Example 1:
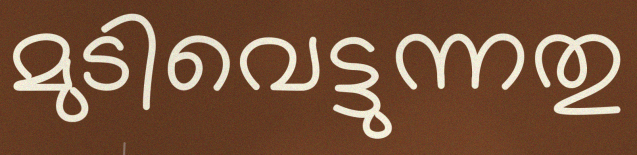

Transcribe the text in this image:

മുടിവെട്ടുന്നതു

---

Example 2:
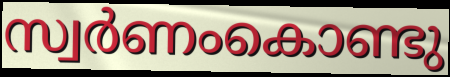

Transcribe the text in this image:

സ്വർണംകൊണ്ടു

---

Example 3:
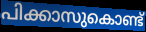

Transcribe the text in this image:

പിക്കാസുകൊണ്ട്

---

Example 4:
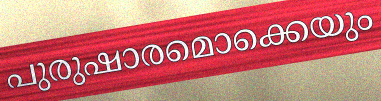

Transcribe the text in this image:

പുരുഷാരമൊക്കെയും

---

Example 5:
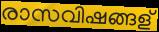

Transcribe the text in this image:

രാസവിഷങ്ങള്